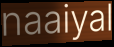
naaiyal